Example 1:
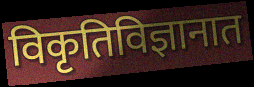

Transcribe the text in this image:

विकृतिविज्ञानात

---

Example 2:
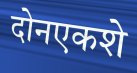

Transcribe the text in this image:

दोनएकशे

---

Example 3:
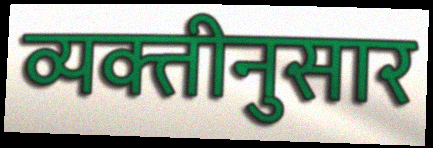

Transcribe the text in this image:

व्यक्तीनुसार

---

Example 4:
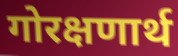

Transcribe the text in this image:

गोरक्षणार्थ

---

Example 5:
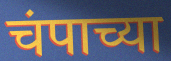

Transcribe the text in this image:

चंपाच्या